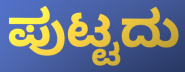
ಪುಟ್ಟದು